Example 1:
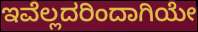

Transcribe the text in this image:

ಇವೆಲ್ಲದರಿಂದಾಗಿಯೇ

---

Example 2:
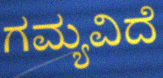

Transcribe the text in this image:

ಗಮ್ಯವಿದೆ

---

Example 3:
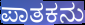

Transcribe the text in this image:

ಪಾತಕನು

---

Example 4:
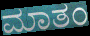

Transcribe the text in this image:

ಮಾತಂ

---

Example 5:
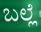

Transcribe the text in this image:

ಬಲ್ಲೆ